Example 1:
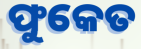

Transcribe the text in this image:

ଫୁକେତ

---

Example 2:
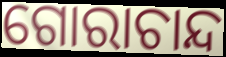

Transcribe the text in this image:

ଗୋରାଚାନ୍ଦ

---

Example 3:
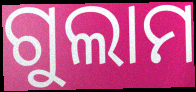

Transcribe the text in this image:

ଗୁଲାମ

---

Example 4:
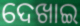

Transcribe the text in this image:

ଦେଖାଇ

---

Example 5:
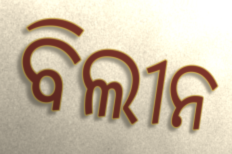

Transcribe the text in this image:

ବିଲୀନ